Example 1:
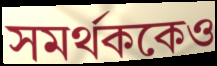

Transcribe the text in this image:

সমর্থককেও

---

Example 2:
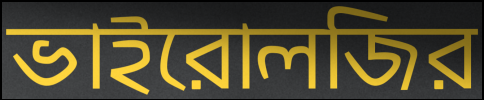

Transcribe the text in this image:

ভাইরোলজির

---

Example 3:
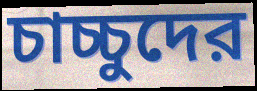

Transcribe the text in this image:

চাচ্চুদের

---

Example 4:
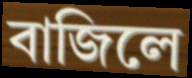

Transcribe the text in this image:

বাজিলে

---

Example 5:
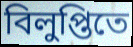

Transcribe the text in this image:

বিলুপ্তিতে